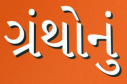
ગ્રંથોનું